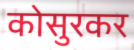
कोसुरकर